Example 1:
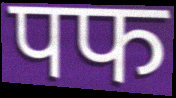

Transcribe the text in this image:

पफ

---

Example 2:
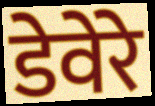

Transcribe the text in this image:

डेवेरे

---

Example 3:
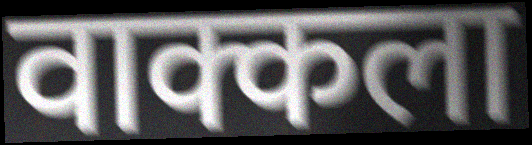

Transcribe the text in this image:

वाक्कला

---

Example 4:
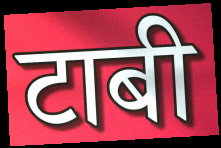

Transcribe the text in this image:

टाबी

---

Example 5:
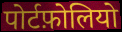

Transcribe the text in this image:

पोर्टफ़ोलियो